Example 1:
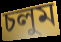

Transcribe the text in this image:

চলুম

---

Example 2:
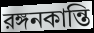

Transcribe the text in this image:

রঙ্গনকান্তি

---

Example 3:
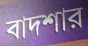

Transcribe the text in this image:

বাদশার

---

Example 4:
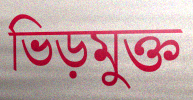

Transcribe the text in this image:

ভিড়মুক্ত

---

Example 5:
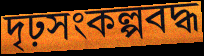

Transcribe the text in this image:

দৃঢ়সংকল্পবদ্ধ